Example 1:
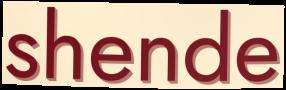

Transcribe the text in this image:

shende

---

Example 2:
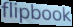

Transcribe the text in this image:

flipbook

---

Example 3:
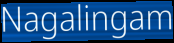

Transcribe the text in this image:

Nagalingam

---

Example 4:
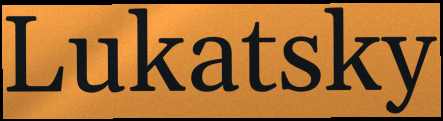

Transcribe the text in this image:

Lukatsky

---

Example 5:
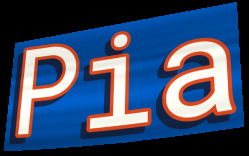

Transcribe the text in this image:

Pia